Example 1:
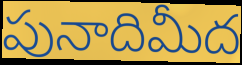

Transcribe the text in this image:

పునాదిమీద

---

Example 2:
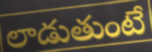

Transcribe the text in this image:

లాడుతుంటే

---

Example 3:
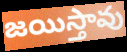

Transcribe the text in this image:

జయిస్తావు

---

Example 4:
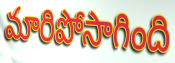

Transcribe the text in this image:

మారిపోసాగింది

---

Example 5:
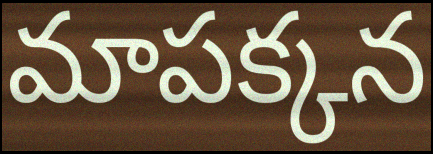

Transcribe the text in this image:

మాపక్కన